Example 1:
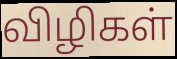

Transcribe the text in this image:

விழிகள்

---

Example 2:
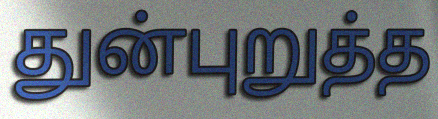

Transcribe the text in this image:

துன்புறுத்த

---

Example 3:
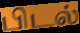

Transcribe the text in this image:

பிடல்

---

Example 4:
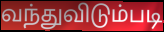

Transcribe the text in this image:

வந்துவிடும்படி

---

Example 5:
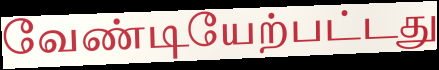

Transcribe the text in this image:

வேண்டியேற்பட்டது